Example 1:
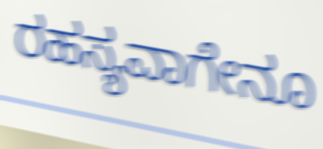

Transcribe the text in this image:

ರಹಸ್ಯವಾಗೇನೂ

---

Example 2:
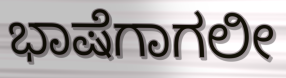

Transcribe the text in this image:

ಭಾಷೆಗಾಗಲೀ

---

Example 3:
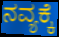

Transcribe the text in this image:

ನವ್ಯಕ್ಕೆ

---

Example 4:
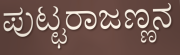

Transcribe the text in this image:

ಪುಟ್ಟರಾಜಣ್ಣನ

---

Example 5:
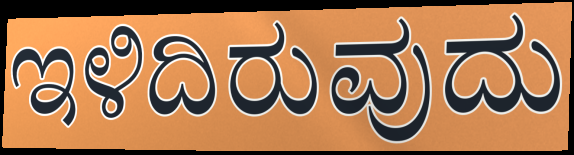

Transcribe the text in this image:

ಇಳಿದಿರುವುದು